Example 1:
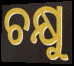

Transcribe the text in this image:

ଚକ୍ଷୁ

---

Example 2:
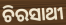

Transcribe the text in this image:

ଚିରସାଥୀ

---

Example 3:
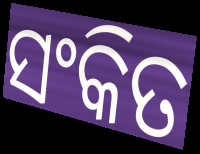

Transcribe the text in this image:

ସଂକିତ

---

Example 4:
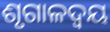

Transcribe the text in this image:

ଶୃଗାଳଦ୍ୱୟ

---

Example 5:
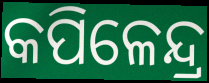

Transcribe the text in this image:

କପିଳେନ୍ଦ୍ର